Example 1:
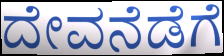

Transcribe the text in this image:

ದೇವನೆಡೆಗೆ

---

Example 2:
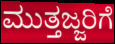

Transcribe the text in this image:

ಮುತ್ತಜ್ಜರಿಗೆ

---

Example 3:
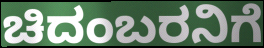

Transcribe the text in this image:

ಚಿದಂಬರನಿಗೆ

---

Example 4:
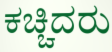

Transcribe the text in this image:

ಕಚ್ಚಿದರು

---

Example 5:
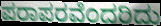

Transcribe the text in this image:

ಪರಾಪರವೆಂದರಿದು